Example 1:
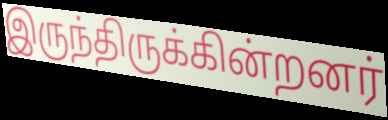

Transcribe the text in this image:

இருந்திருக்கின்றனர்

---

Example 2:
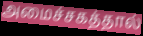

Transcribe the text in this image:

அமைச்சகத்தால்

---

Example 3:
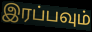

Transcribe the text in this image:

இரப்பவும்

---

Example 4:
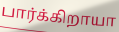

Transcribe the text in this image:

பார்க்கிறாயா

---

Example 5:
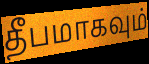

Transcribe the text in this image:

தீபமாகவும்